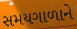
સમયગાળાને